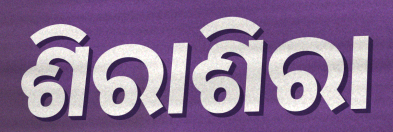
ଶିରାଶିରା